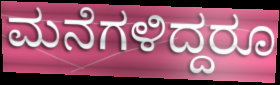
ಮನೆಗಳಿದ್ದರೂ